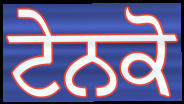
ਟੇਨਕੋ